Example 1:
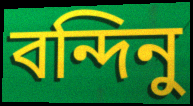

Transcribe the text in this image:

বন্দিনু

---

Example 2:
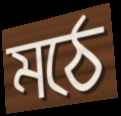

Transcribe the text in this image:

মঠে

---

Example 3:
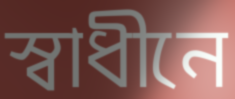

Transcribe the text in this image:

স্বাধীনে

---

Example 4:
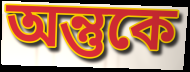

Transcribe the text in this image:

অন্তুকে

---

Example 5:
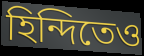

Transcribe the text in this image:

হিন্দিতেও